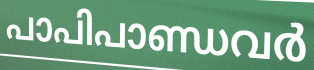
പാപിപാണ്ഡവർ